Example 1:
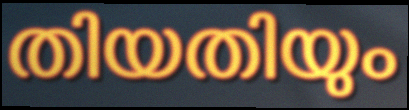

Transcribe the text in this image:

തിയതിയും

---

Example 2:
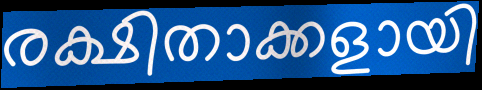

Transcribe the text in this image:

രക്ഷിതാക്കളായി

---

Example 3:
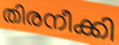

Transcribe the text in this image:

തിരനീക്കി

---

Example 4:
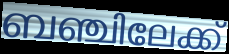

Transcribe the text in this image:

ബഞ്ചിലേക്ക്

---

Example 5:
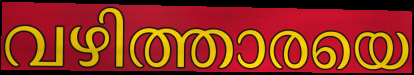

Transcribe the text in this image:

വഴിത്താരയെ